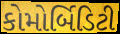
કોમોર્બિડિટી